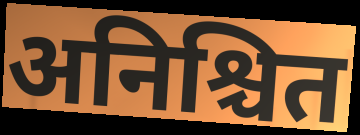
अनिश्चित